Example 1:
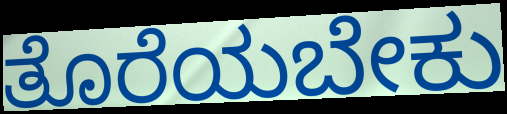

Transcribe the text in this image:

ತೊರೆಯಬೇಕು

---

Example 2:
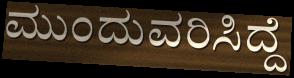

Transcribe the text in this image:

ಮುಂದುವರಿಸಿದ್ದೆ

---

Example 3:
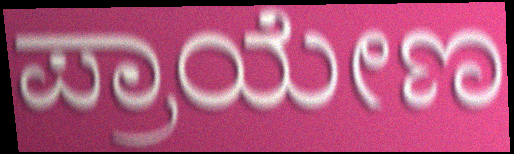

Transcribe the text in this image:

ಪ್ರಾಯೇಣ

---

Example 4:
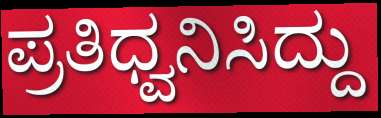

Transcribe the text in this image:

ಪ್ರತಿಧ್ವನಿಸಿದ್ದು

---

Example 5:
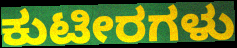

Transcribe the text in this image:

ಕುಟೀರಗಳು